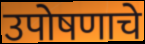
उपोषणाचे